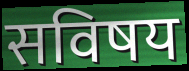
सविषय